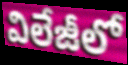
విలేజీలో